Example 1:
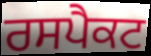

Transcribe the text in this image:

ਰਸਪੈਕਟ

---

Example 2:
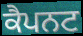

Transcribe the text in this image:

ਕੈਪਨਟ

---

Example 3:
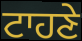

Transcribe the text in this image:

ਟਾਹਣੇ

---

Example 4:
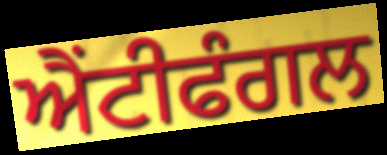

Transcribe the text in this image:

ਐਂਟੀਫੰਗਲ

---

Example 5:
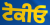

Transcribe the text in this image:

ਟੋਕੀਓ